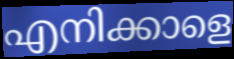
എനിക്കാളെ